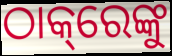
ଠାକ୍‌ରେଙ୍କୁ